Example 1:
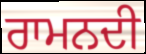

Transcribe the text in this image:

ਰਾਮਨਦੀ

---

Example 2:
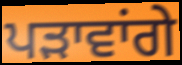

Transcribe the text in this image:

ਪੜਾਵਾਂਗੇ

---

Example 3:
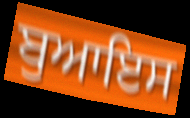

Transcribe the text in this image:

ਬੁਆਇਸ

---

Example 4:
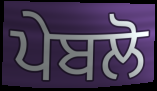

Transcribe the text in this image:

ਪੇਬਲੋ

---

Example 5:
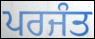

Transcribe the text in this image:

ਪਰਜੰਤ